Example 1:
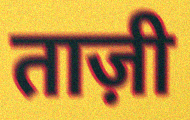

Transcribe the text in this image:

ताज़ी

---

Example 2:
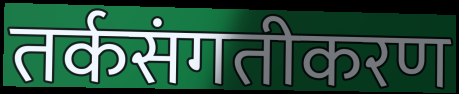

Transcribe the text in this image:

तर्कसंगतीकरण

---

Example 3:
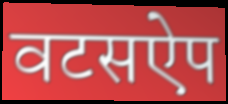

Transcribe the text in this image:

वटसऐप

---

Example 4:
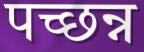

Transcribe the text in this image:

पच्छन्न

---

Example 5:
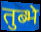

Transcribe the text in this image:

तुब्भे